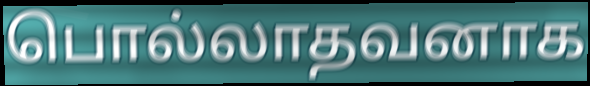
பொல்லாதவனாக